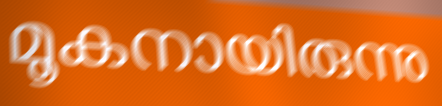
മൂകനായിരുന്നു